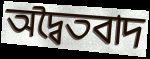
অদ্বৈতবাদ